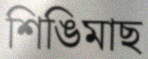
শিঙিমাছ